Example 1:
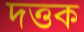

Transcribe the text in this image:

দত্তক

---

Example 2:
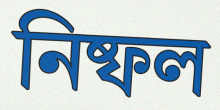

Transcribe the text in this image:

নিষ্ফল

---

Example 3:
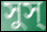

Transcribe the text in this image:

সুস্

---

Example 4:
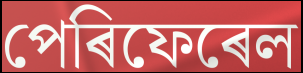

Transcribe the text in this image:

পেৰিফেৰেল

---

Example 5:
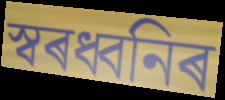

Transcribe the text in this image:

স্বৰধ্বনিৰ